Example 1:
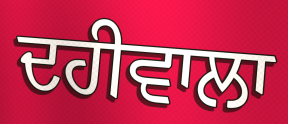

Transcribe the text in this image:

ਦਹੀਵਾਲਾ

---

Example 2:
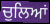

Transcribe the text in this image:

ਚੁਲਿਆਂ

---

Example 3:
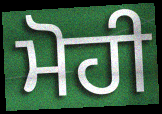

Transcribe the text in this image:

ਮੋਹੀ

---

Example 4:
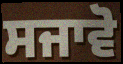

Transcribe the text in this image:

ਸਜਾਵੋ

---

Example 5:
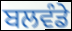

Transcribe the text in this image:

ਬਲਵੰਡੇ